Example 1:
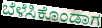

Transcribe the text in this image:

ಬೆಳೆಸಿಕೊಂಡಾಗ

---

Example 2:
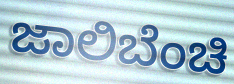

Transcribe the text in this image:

ಜಾಲಿಬೆಂಚಿ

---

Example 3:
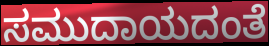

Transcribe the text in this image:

ಸಮುದಾಯದಂತೆ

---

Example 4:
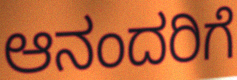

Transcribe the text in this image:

ಆನಂದರಿಗೆ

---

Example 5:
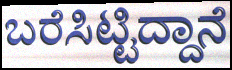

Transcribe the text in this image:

ಬರೆಸಿಟ್ಟಿದ್ದಾನೆ